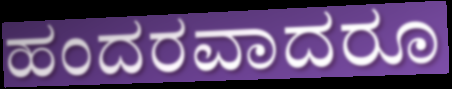
ಹಂದರವಾದರೂ